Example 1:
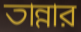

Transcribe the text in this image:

তান্নার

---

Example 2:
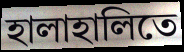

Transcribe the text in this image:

হালাহালিতে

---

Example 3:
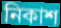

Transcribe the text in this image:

নিকাশ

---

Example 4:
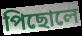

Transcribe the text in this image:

পিছোলে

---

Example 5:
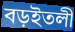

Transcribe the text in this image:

বড়ইতলী